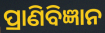
ପ୍ରାଣିବିଜ୍ଞାନ